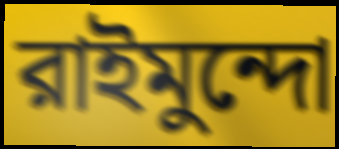
রাইমুন্দো